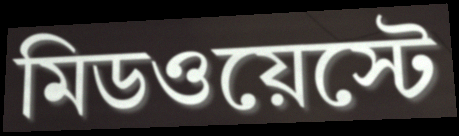
মিডওয়েস্টে